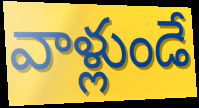
వాళ్లుండే